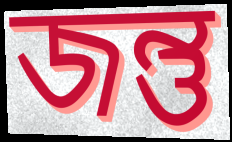
জন্তু